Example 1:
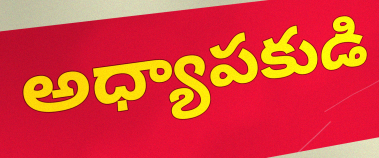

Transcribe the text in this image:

అధ్యాపకుడి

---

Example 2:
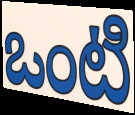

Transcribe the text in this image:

ఒంటి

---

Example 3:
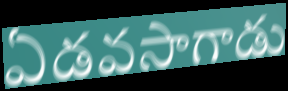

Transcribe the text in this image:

ఏడవసాగాడు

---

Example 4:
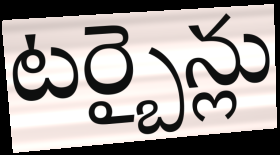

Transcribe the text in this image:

టర్బైన్లు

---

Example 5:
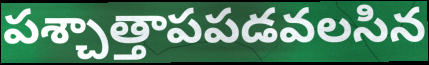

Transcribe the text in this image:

పశ్చాత్తాపపడవలసిన